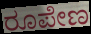
ರೂಪೇಣ